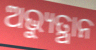
ଅଭ୍ୟୁତ୍ଥାନ